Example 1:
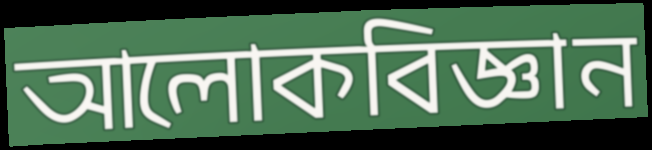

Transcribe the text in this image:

আলোকবিজ্ঞান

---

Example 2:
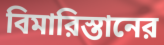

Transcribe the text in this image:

বিমারিস্তানের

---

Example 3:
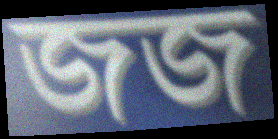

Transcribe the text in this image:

জজ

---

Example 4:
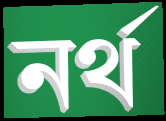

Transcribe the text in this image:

নর্থ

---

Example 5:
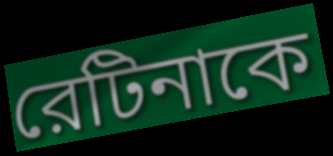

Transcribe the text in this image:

রেটিনাকে